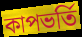
কাপভর্তি